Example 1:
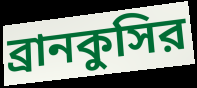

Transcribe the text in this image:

ব্রানকুসির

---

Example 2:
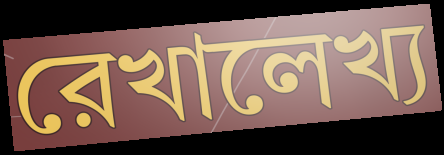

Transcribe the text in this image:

রেখালেখ্য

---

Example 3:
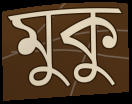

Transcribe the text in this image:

মুকু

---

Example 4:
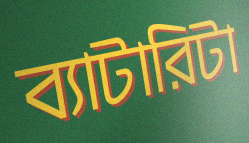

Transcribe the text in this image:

ব্যাটারিটা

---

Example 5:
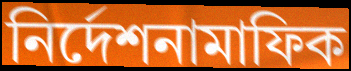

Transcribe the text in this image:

নির্দেশনামাফিক